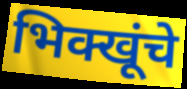
भिक्खूंचे